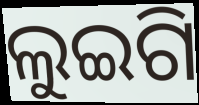
ଲୁଇଗି